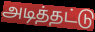
அடித்தட்டு